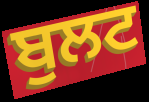
ਬੁਲਟ